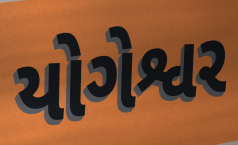
યોગેશ્વર